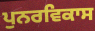
ਪੁਨਰਵਿਕਾਸ